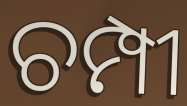
ଚମ୍ପୀ